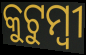
କୁଟୁମ୍ୱୀ